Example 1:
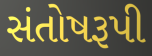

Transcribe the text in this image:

સંતોષરૂપી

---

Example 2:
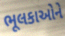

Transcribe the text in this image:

ભૂલકાઓને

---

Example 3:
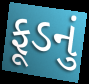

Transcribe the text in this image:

ફૂડનું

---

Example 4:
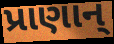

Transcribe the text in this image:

પ્રાણાન્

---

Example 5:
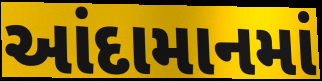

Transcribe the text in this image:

આંદામાનમાં